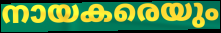
നായകരെയും